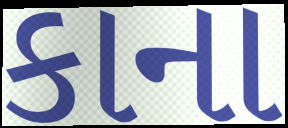
કાના